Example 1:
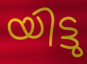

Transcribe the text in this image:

യിട്ടു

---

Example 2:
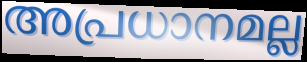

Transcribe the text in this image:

അപ്രധാനമല്ല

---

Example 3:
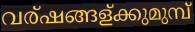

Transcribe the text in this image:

വര്ഷങ്ങള്ക്കുമുമ്പ്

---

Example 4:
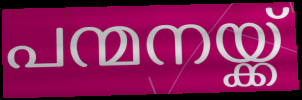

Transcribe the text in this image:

പന്മനയ്ക്ക്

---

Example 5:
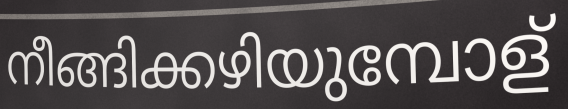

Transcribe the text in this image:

നീങ്ങിക്കഴിയുമ്പോള്